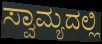
ಸ್ವಾಮ್ಯದಲ್ಲಿ